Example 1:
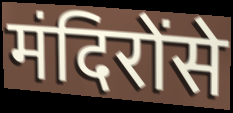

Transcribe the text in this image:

मंदिरोंसे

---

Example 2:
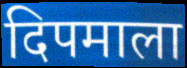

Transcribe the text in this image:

दिपमाला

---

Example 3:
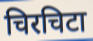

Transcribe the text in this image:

चिरचिटा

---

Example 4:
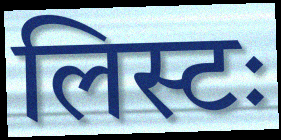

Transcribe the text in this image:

लिस्टः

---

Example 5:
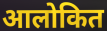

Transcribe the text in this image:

आलोकित